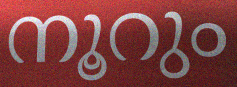
നൂറും